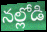
నల్లోడి